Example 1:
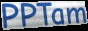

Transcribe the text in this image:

PPTam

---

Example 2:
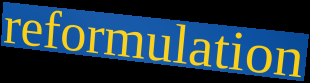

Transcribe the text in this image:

reformulation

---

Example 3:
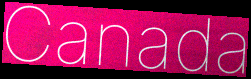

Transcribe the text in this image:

Canada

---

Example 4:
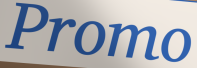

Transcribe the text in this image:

Promo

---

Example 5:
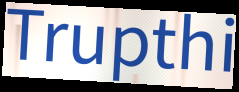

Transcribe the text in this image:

Trupthi